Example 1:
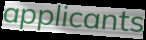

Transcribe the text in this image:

applicants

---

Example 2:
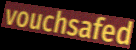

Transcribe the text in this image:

vouchsafed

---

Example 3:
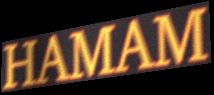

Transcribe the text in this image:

HAMAM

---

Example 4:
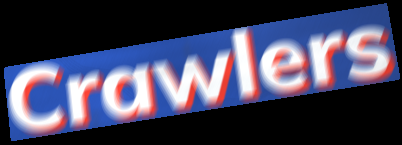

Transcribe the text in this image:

Crawlers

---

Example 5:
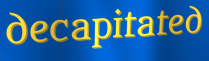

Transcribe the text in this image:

decapitated